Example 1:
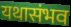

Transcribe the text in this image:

यथासंभव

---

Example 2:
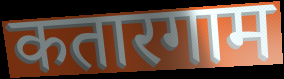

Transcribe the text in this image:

कतारगाम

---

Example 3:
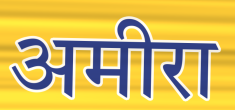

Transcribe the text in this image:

अमीरा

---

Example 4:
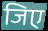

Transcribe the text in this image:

जिए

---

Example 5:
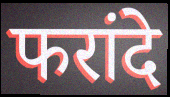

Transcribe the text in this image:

फरांदे